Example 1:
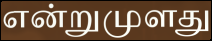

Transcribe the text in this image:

என்றுமுளது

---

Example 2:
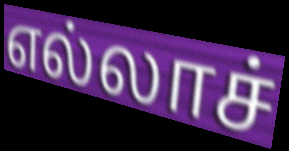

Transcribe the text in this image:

எல்லாச்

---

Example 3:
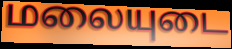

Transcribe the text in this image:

மலையுடை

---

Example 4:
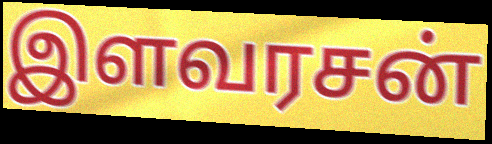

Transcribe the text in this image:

இளவரசன்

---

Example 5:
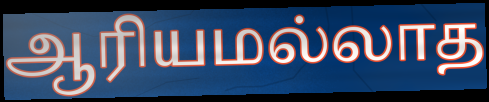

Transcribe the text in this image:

ஆரியமல்லாத